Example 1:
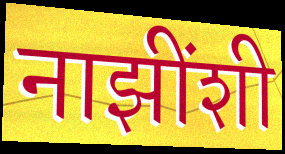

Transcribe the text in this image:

नाझींशी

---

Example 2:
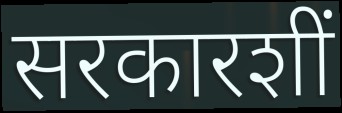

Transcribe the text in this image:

सरकारशीं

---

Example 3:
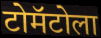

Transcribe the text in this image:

टोमॅटोला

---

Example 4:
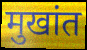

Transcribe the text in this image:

मुखांत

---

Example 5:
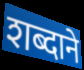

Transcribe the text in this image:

शब्दाने